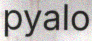
pyalo